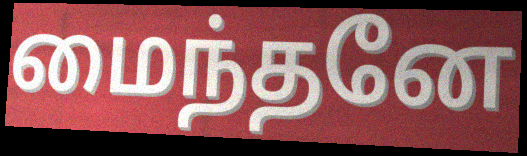
மைந்தனே